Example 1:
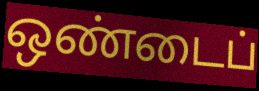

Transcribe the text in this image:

ஒண்டைப்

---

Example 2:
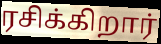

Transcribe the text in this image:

ரசிக்கிறார்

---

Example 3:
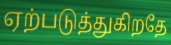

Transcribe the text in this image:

ஏற்படுத்துகிறதே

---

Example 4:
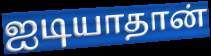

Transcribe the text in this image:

ஐடியாதான்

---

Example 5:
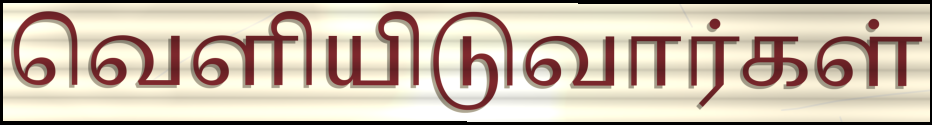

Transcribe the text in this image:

வெளியிடுவார்கள்